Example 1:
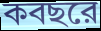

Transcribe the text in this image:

কবছরে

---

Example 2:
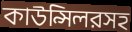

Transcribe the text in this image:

কাউন্সিলরসহ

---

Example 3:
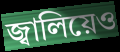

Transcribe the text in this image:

জ্বালিয়েও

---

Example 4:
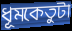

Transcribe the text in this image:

ধূমকেতুটা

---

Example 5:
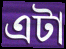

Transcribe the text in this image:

এটা